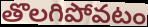
తొలగిపోవటం